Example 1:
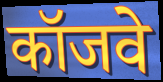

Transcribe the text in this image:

कॉजवे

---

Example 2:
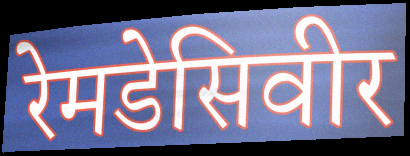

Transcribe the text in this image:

रेमडेसिवीर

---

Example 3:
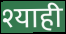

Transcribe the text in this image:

श्याही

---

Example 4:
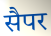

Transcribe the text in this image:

सैपर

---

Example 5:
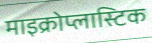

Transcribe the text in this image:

माइक्रोप्लास्टिक